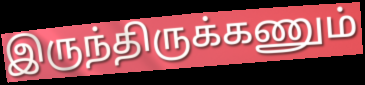
இருந்திருக்கணும்